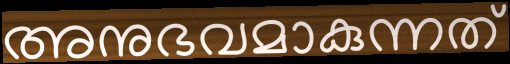
അനുഭവമാകുന്നത്